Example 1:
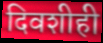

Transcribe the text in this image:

दिवशीही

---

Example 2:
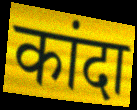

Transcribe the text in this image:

कांदा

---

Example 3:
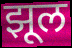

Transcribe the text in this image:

झूल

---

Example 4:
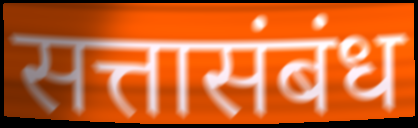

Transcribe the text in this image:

सत्तासंबंध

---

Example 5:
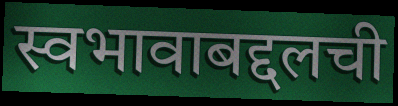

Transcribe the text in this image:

स्वभावाबद्दलची